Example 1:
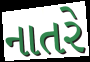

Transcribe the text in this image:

નાતરે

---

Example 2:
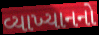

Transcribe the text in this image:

વ્યાખ્યાનનો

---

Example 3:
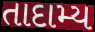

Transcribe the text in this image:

તાદામ્ય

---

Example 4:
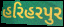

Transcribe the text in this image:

હરિહરપુર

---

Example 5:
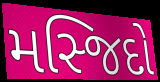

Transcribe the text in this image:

મસ્જિદો